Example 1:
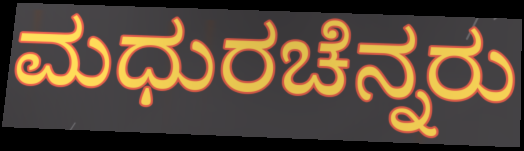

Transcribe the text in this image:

ಮಧುರಚೆನ್ನರು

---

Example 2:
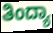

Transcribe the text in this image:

ತಿಂದ್ಯಾ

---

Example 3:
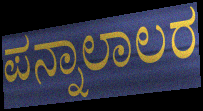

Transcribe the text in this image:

ಪನ್ನಾಲಾಲರ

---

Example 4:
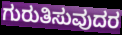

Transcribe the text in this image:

ಗುರುತಿಸುವುದರ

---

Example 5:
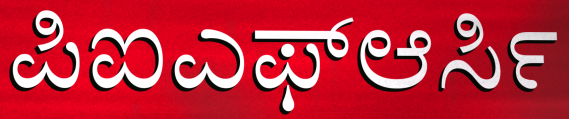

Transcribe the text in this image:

ಪಿಐಎಫ್ಆರ್ಸಿ